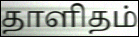
தாளிதம்